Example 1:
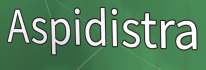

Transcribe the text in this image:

Aspidistra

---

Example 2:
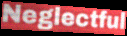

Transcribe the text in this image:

Neglectful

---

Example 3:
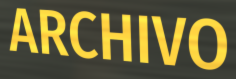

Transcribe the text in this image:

ARCHIVO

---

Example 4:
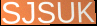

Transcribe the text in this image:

SJSUK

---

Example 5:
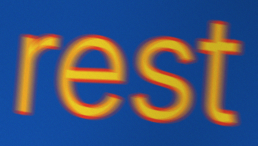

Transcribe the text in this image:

rest